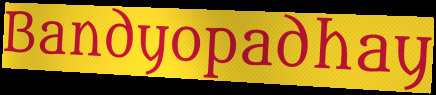
Bandyopadhay